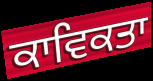
ਕਾਵਿਕਤਾ